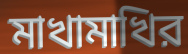
মাখামাখির